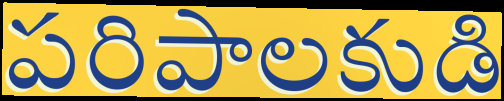
పరిపాలకుడి